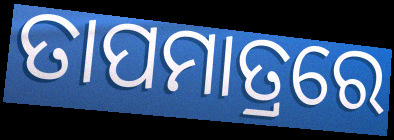
ତାପମାତ୍ରରେ